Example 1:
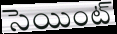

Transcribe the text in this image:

సెయింట్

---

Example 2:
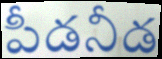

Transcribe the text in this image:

పీడనీడ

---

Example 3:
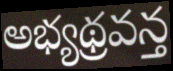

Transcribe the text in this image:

అభ్యథ్రవన్త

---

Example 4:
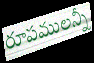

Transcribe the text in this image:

రూపములన్నీ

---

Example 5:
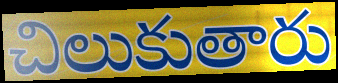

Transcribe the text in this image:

చిలుకుతారు